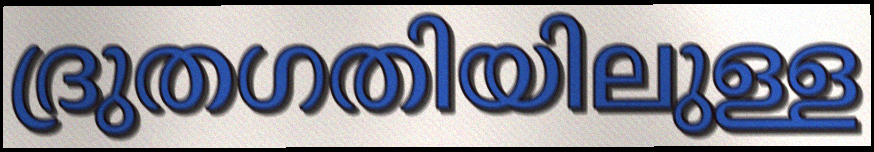
ദ്രുതഗതിയിലുള്ള